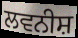
ਲਵਨੀਸ਼